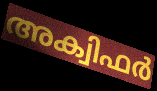
അക്വിഫർ